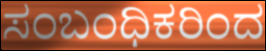
ಸಂಬಂಧಿಕರಿಂದ